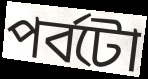
পৰ্বটো